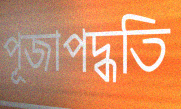
পূজাপদ্ধতি